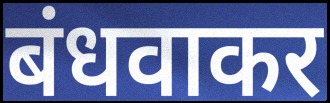
बंधवाकर